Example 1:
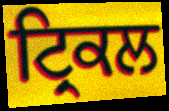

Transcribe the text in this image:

ਟ੍ਰਿਕਲ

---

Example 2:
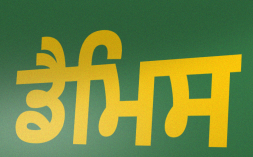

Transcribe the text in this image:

ਡੈਮਿਸ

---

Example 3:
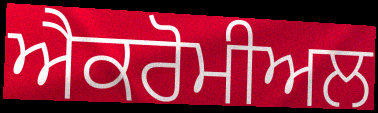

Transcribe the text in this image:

ਐਕਰੋਮੀਅਲ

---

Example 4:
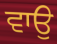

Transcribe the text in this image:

ਵਾਉ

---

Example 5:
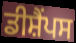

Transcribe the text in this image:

ਡੀਸ਼ੈਂਪਸ